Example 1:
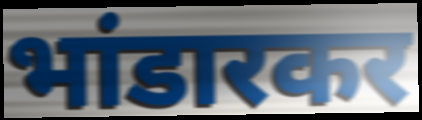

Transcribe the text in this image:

भांडारकर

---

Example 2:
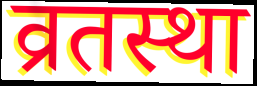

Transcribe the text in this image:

व्रतस्था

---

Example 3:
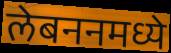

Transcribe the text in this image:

लेबननमध्ये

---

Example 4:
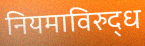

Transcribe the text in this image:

नियमाविरुद्ध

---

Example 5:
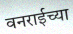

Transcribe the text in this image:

वनराईच्या